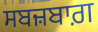
ਸਬਜ਼ਬਾਗ਼